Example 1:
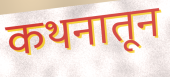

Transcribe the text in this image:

कथनातून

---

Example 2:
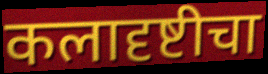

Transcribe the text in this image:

कलादृष्टीचा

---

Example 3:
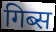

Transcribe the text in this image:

गिब्स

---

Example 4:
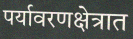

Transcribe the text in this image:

पर्यावरणक्षेत्रात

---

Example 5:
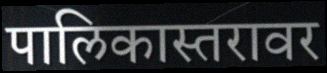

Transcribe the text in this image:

पालिकास्तरावर